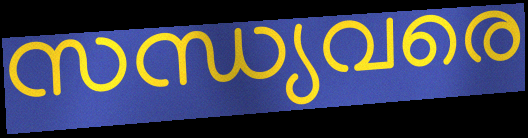
സന്ധ്യവരെ